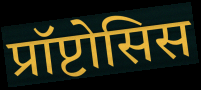
प्रॉप्टोसिस